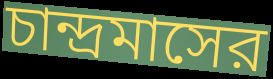
চান্দ্রমাসের